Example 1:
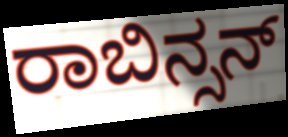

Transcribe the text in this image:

ರಾಬಿನ್ಸನ್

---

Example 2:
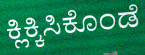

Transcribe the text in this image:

ಕ್ಲಿಕ್ಕಿಸಿಕೊಂಡೆ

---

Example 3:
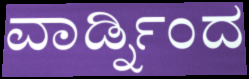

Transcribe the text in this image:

ವಾರ್ಡ್ನಿಂದ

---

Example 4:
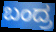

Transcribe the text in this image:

ಬಂದ್ರ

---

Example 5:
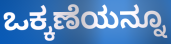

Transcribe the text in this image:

ಒಕ್ಕಣೆಯನ್ನೂ